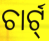
ଚାର୍ଟ୍